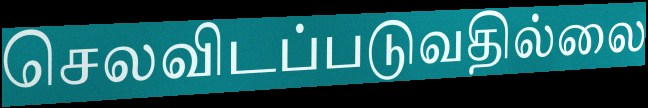
செலவிடப்படுவதில்லை